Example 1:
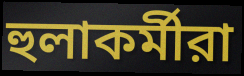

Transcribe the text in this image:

হুলাকর্মীরা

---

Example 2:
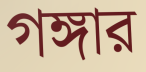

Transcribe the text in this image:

গঙ্গার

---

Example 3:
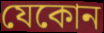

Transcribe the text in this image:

যেকোন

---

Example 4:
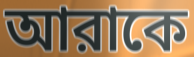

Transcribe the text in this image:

আরাকে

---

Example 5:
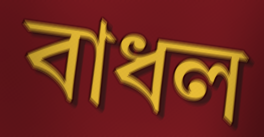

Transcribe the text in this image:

বাধল